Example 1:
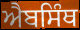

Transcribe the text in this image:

ਐਬਸਿੰਥ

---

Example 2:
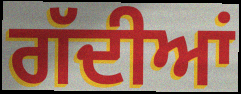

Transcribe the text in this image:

ਗੱਦੀਆਂ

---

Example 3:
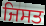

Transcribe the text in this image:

ਜਿਸਤ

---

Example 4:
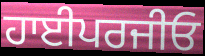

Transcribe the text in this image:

ਹਾਈਪਰਜੀਓ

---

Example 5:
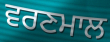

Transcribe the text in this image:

ਵਰਣਮਾਲ